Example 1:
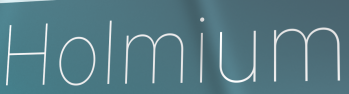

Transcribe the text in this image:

Holmium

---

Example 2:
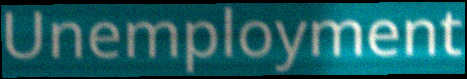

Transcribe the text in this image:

Unemployment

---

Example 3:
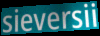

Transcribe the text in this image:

sieversii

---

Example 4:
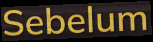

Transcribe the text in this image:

Sebelum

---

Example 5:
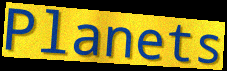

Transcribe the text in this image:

Planets